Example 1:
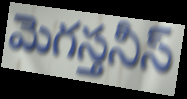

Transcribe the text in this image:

మెగస్తనీస్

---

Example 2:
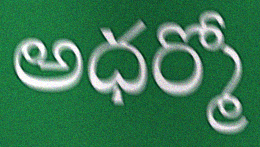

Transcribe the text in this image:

అధర్మో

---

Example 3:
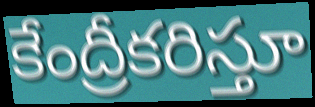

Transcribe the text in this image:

కేంద్రీకరిస్తూ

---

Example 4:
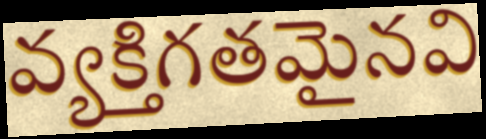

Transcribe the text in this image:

వ్యక్తిగతమైనవి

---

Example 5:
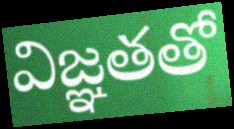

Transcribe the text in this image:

విజ్ఞతతో